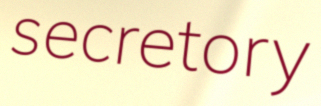
secretory